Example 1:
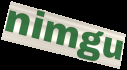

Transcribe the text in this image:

nimgu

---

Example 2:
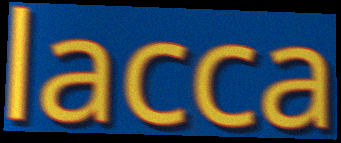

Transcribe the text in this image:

lacca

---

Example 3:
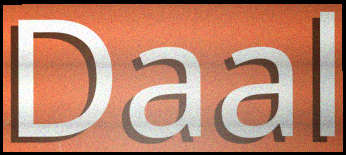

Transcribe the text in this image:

Daal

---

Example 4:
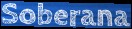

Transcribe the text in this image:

Soberana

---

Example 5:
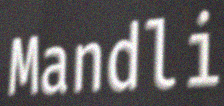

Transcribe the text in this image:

Mandli